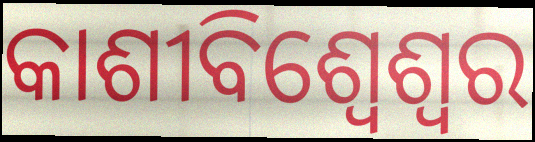
କାଶୀବିଶ୍ୱେଶ୍ୱର